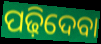
ପଢ଼ିଦେବା